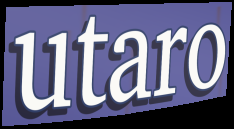
utaro